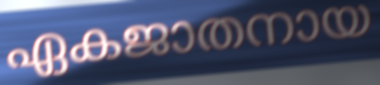
ഏകജാതനായ